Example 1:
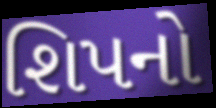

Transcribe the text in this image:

શિપનો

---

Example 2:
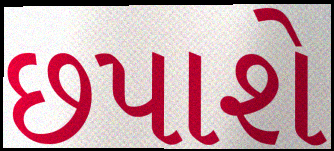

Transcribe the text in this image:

છપાશે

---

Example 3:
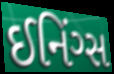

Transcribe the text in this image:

ઈનિંગ્સ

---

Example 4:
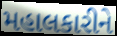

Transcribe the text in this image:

મહાલકારીને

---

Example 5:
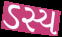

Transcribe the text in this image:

ઽસ્ય